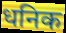
धनिक